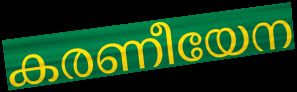
കരണീയേന